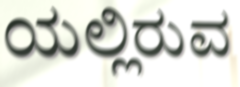
ಯಲ್ಲಿರುವ